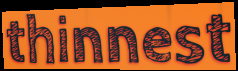
thinnest